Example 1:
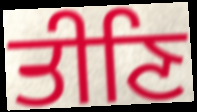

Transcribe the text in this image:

ਤੀਣਿ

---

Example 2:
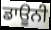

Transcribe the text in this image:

ਡਾਊਨੀ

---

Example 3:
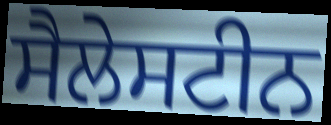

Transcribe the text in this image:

ਸੈਲੇਸਟੀਨ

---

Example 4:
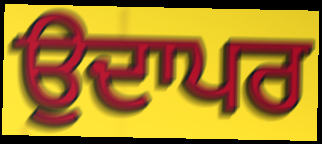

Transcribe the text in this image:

ਉਦਾਪਰ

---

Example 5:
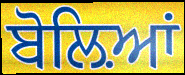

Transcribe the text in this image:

ਬੋਲ਼ਿਆਂ